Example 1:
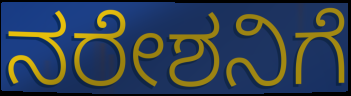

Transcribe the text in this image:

ನರೇಶನಿಗೆ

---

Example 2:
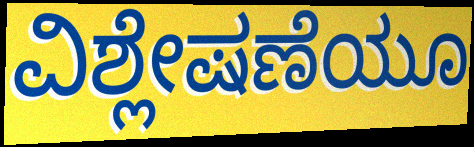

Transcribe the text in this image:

ವಿಶ್ಲೇಷಣೆಯೂ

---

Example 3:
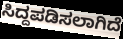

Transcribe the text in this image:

ಸಿದ್ದಪಡಿಸಲಾಗಿದೆ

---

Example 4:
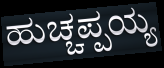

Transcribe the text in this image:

ಹುಚ್ಚಪ್ಪಯ್ಯ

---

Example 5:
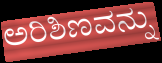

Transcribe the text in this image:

ಅರಿಶಿಣವನ್ನು